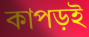
কাপড়ই